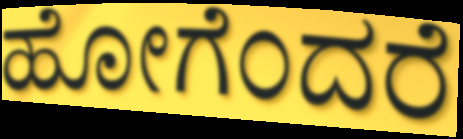
ಹೋಗೆಂದರೆ